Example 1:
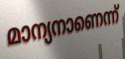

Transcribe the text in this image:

മാന്യനാണെന്ന്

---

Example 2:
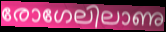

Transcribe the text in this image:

രോഗേലിലാണു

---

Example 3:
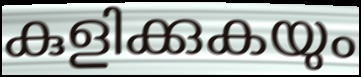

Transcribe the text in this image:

കുളിക്കുകയും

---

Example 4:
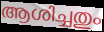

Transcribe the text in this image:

ആശിച്ചതും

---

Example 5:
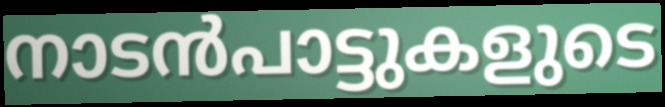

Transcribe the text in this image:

നാടൻപാട്ടുകളുടെ